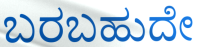
ಬರಬಹುದೇ